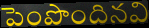
పెంపొందినవి